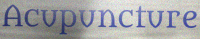
Acupuncture